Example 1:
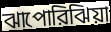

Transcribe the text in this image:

ঝাপোরিঝিয়া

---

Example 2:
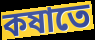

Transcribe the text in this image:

কষাতে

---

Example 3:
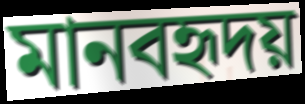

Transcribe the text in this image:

মানবহৃদয়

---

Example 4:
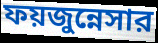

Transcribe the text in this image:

ফয়জুন্নেসার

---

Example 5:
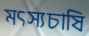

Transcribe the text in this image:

মৎস্যচাষি